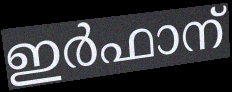
ഇർഫാന്